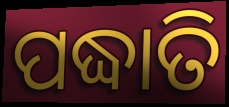
ପଦ୍ଧାତି